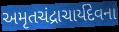
અમૃતચંદ્રાચાર્યદેવના